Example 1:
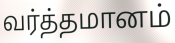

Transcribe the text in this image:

வர்த்தமானம்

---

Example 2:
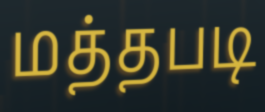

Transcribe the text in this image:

மத்தபடி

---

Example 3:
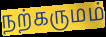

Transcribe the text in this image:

நற்கருமம்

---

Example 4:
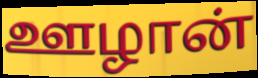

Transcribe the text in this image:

ஊழான்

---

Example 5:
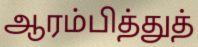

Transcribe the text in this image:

ஆரம்பித்துத்